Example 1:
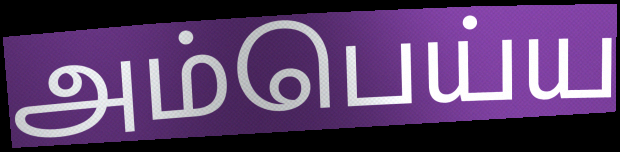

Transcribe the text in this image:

அம்பெய்ய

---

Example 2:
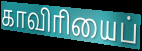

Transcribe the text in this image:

காவிரியைப்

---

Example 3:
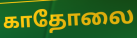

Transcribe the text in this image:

காதோலை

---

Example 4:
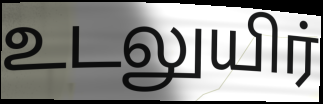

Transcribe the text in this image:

உடலுயிர்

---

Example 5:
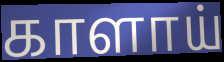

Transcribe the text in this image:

காளாய்